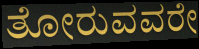
ತೋರುವವರೇ